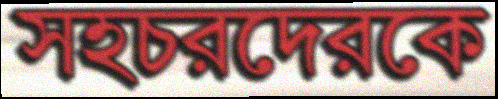
সহচরদেরকে